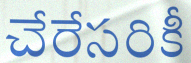
చేరేసరికీ